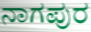
ನಾಗಪುರ